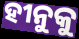
ହୀନୁକୁ